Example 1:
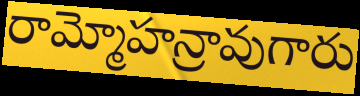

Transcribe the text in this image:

రామ్మోహన్రావుగారు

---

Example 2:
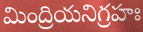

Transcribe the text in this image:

మింద్రియనిగ్రహః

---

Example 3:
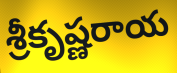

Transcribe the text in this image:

శ్రీకృష్ణరాయ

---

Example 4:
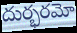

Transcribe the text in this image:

దుర్భరమో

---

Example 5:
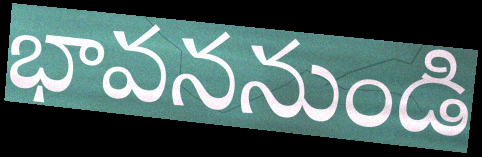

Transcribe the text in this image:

భావననుండి